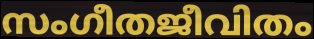
സംഗീതജീവിതം